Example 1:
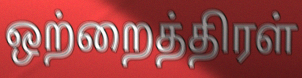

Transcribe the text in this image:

ஒற்றைத்திரள்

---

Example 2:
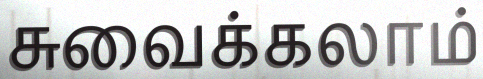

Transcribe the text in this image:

சுவைக்கலாம்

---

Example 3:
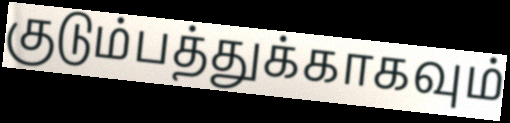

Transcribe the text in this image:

குடும்பத்துக்காகவும்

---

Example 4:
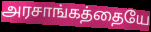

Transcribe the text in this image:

அரசாங்கத்தையே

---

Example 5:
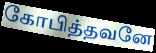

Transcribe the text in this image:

கோபித்தவனே